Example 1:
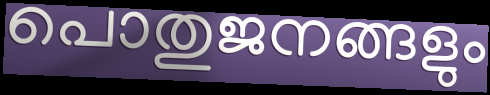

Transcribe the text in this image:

പൊതുജനങ്ങളും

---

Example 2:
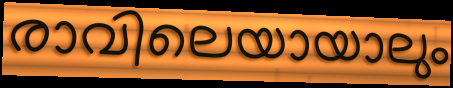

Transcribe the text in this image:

രാവിലെയായാലും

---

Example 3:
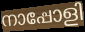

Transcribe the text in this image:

നാപ്പോളി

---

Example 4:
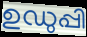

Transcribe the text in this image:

ഉഡുപ്പി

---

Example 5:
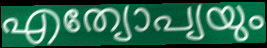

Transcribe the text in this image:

എത്യോപ്യയും